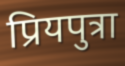
प्रियपुत्रा